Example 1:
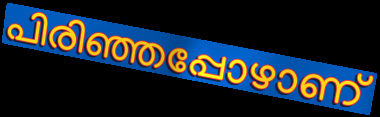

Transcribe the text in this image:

പിരിഞ്ഞപ്പോഴാണ്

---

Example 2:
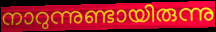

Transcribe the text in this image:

നാറുന്നുണ്ടായിരുന്നു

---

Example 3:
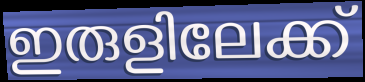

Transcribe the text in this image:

ഇരുളിലേക്ക്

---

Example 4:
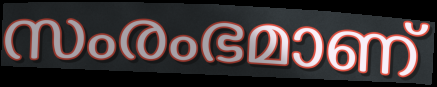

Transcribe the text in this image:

സംരംഭമാണ്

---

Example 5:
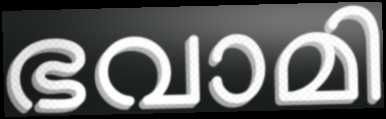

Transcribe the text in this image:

ഭവാമി